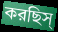
করছিস্